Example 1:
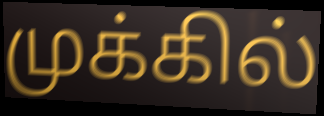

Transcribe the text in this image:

முக்கில்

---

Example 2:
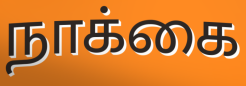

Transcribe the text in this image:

நாக்கை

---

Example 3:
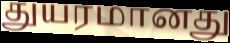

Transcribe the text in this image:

துயரமானது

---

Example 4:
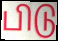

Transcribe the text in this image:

பிடு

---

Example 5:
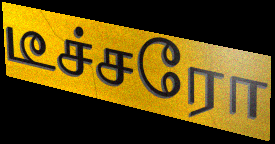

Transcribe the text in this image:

டீச்சரோ